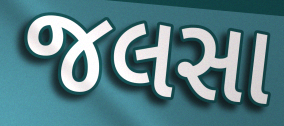
જલસા